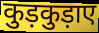
कुड़कुड़ाए